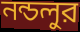
নন্ডলুর